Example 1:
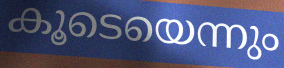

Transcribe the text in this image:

കൂടെയെന്നും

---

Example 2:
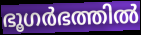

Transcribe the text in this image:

ഭൂഗർഭത്തിൽ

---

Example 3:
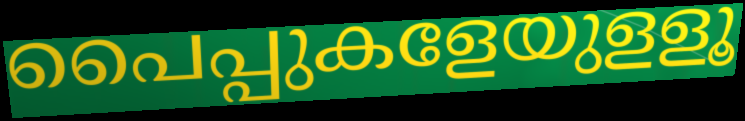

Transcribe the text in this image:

പൈപ്പുകളേയുളളൂ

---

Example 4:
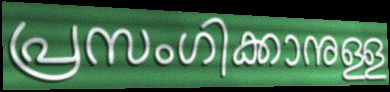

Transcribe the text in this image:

പ്രസംഗിക്കാനുള്ള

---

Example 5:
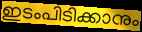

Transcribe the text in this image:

ഇടംപിടിക്കാനും